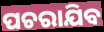
ପଚରାଯିବ